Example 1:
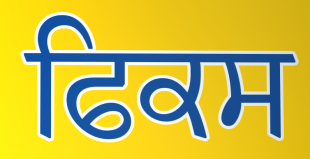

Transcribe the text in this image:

ਫਿਕਸ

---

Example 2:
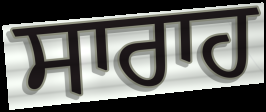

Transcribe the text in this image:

ਸਾਰਾਹ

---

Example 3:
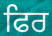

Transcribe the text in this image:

ਫਿਰ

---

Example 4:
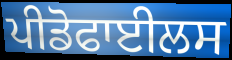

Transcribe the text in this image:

ਪੀਡੋਫਾਈਲਸ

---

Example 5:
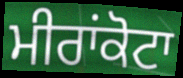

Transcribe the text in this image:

ਮੀਰਾਂਕੋਟਾ